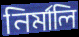
নিৰ্মালি